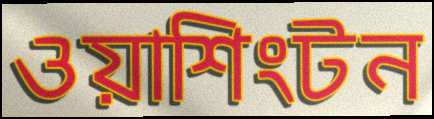
ওয়াশিংটন